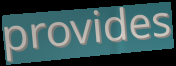
provides